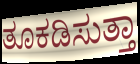
ತೂಕಡಿಸುತ್ತಾ